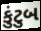
કુંટુબ